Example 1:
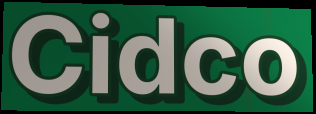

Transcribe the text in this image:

Cidco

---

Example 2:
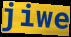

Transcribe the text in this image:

jiwe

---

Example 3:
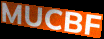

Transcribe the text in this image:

MUCBF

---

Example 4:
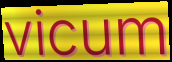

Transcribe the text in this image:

vicum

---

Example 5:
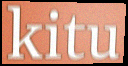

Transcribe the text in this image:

kitu